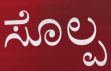
ಸೊಲ್ಪ